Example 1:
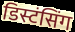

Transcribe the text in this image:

डिस्टंसिंग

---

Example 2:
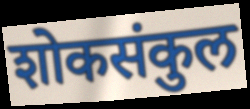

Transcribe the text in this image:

शोकसंकुल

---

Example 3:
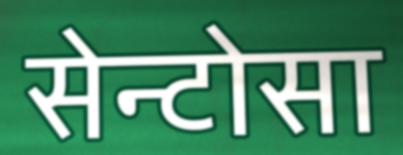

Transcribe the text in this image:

सेन्टोसा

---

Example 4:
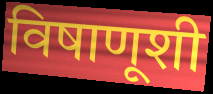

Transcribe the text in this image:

विषाणूशी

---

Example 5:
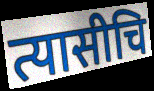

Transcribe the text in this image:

त्यासीचि